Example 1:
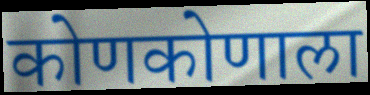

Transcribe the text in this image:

कोणकोणाला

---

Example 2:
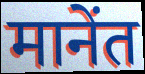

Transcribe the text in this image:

मानेंत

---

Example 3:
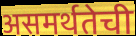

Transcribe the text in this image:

असमर्थतेची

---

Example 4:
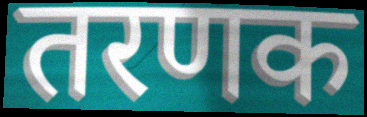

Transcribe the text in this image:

तरणक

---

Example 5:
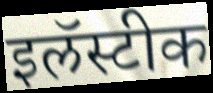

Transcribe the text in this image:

इलॅस्टीक